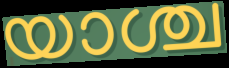
യാശ്ച